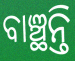
ବାଞ୍ଛନ୍ତି